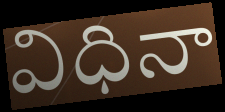
విధినా